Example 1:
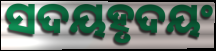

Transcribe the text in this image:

ସଦୟହୃଦୟଂ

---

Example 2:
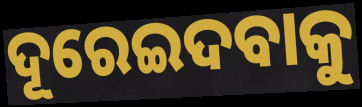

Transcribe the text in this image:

ଦୂରେଇଦବାକୁ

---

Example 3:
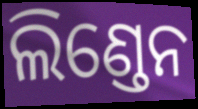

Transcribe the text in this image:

ଲିଣ୍ଡେନ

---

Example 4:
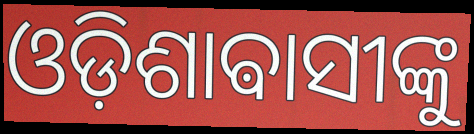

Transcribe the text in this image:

ଓଡ଼ିଶାଵାସୀଙ୍କୁ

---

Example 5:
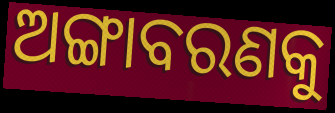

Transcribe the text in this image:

ଅଙ୍ଗାବରଣକୁ